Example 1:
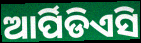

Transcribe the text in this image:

ଆର୍ପିଡିଏସି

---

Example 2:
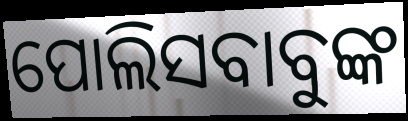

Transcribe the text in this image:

ପୋଲିସବାବୁଙ୍କ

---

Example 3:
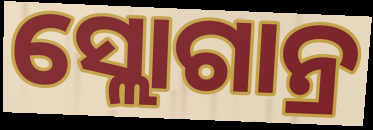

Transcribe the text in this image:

ସ୍ଲୋଗାନ୍ର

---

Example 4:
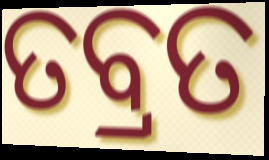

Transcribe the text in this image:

ତବ୍ରତ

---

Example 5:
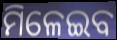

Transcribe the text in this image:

ମିଳେଇବ